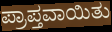
ಪ್ರಾಪ್ತವಾಯಿತು